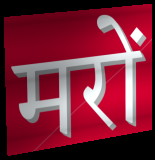
मरों